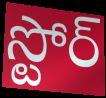
స్టోర్